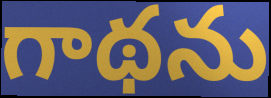
గాథను